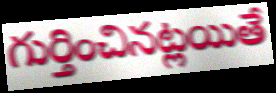
గుర్తించినట్లయితే